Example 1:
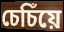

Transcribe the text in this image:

চেচিঁয়ে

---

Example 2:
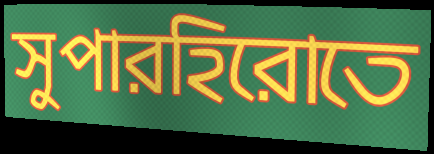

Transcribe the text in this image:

সুপারহিরোতে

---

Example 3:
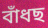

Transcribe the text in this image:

বাঁধছ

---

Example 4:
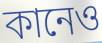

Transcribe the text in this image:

কানেও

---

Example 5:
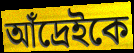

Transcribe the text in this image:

আঁদ্রেইকে